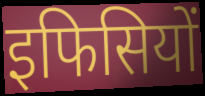
इफिसियों